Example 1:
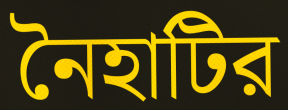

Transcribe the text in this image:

নৈহাটির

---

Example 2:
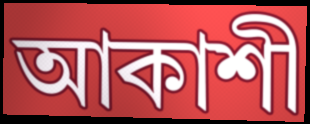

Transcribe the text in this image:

আকাশী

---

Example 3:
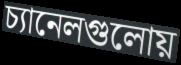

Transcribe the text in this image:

চ্যানেলগুলোয়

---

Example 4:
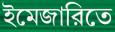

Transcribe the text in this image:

ইমেজারিতে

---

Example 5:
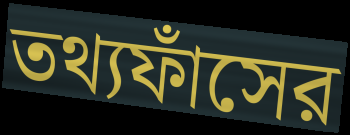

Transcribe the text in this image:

তথ্যফাঁসের